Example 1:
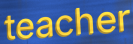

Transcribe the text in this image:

teacher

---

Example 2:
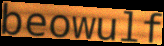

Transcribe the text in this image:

beowulf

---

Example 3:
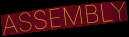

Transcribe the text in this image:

ASSEMBLY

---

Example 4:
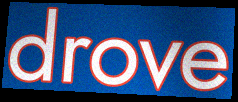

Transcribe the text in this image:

drove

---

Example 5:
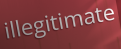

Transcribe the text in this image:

illegitimate